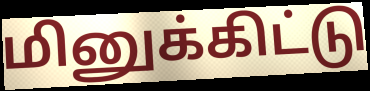
மினுக்கிட்டு